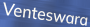
Venteswara